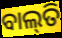
ବାଲ୍‌ତି